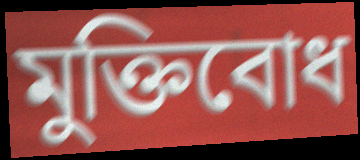
মুক্তিবোধ